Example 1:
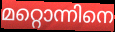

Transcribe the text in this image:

മറ്റൊന്നിനെ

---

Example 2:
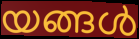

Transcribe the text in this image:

യങ്ങൾ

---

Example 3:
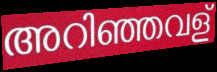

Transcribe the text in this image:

അറിഞ്ഞവള്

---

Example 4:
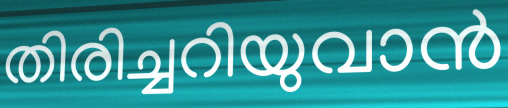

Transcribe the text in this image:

തിരിച്ചറിയുവാൻ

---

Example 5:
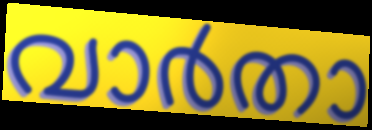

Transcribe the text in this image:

വാർതാ